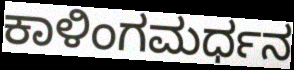
ಕಾಳಿಂಗಮರ್ಧನ